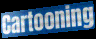
Cartooning